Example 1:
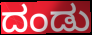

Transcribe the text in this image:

ದಂಡು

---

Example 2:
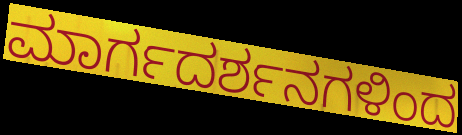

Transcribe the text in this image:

ಮಾರ್ಗದರ್ಶನಗಳಿಂದ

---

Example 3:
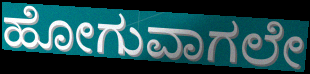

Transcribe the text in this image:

ಹೋಗುವಾಗಲೇ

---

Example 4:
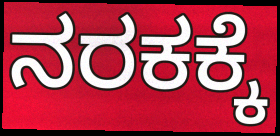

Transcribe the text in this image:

ನರಕಕ್ಕೆ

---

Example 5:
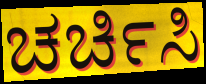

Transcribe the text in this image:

ಚರ್ಚಿಸಿ